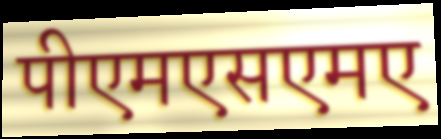
पीएमएसएमए